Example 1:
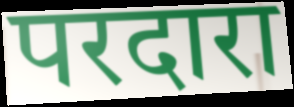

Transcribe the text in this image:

परदारा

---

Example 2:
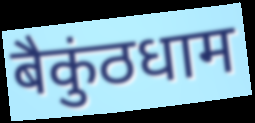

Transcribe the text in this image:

बैकुंठधाम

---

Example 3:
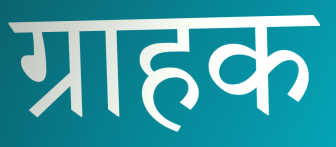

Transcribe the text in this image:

ग्राहक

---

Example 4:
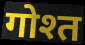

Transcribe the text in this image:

गोश्त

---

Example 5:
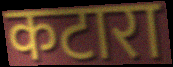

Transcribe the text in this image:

कटारा